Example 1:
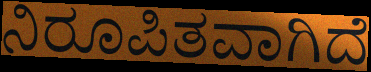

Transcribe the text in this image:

ನಿರೂಪಿತವಾಗಿದೆ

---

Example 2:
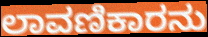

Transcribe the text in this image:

ಲಾವಣಿಕಾರನು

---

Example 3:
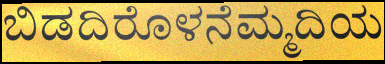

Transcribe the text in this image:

ಬಿಡದಿರೊಳನೆಮ್ಮದಿಯ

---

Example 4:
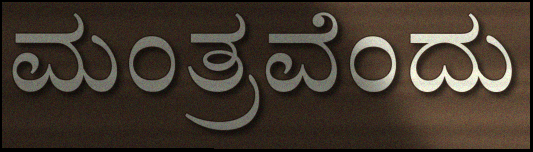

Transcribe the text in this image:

ಮಂತ್ರವೆಂದು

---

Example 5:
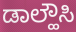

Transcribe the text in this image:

ಡಾಲ್ಹೌಸಿ